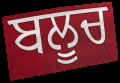
ਬਲੂਚ